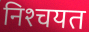
निश्चयत